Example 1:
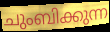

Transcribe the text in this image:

ചുംബിക്കുന്ന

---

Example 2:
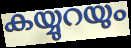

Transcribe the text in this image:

കയ്യുറയും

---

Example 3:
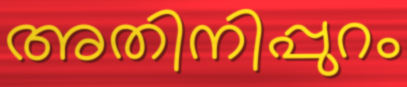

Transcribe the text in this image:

അതിനിപ്പുറം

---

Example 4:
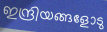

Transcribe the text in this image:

ഇന്ദ്രിയങ്ങളോടു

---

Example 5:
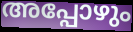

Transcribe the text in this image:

അപ്പോഴും